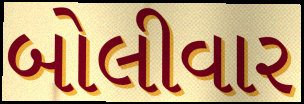
બોલીવાર